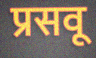
प्रसवू